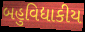
બહુવિદ્યાકીય